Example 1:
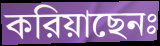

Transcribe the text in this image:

করিয়াছেনঃ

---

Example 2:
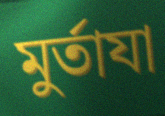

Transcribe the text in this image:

মুর্তাযা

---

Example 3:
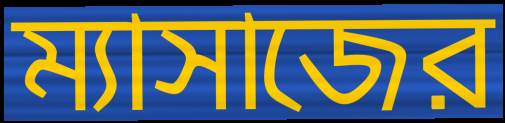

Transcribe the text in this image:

ম্যাসাজের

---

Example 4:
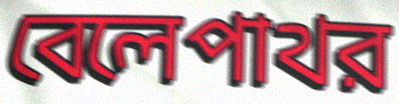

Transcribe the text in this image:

বেলেপাথর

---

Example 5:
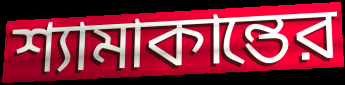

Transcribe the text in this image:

শ্যামাকান্তের